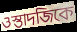
ওস্তাদজিকে